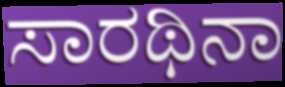
ಸಾರಥಿನಾ